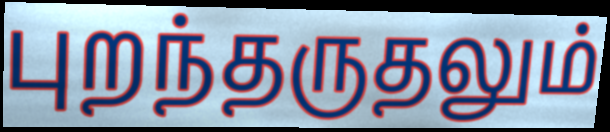
புறந்தருதலும்